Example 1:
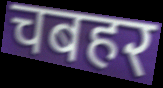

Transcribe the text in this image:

चबहर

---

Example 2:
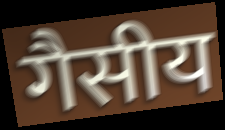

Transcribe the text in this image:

गैसीय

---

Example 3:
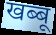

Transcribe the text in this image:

खब्बू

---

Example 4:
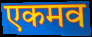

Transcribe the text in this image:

एकमव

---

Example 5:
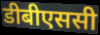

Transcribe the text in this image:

डीबीएससी